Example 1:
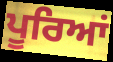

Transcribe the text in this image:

ਪੂਰਿਆਂ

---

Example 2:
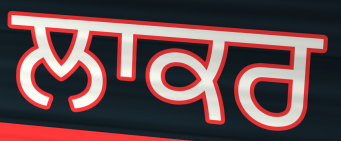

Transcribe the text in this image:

ਲਾਕਰ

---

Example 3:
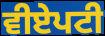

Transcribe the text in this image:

ਵੀਏਪਟੀ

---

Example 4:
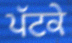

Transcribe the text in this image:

ਪੱਟਕੇ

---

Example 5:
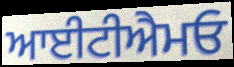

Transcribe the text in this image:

ਆਈਟੀਐਮਓ